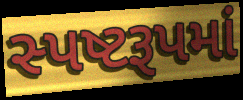
સ્પષ્ટરૂપમાં